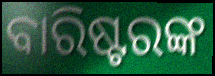
ବାରିଷ୍ଟରଙ୍କ